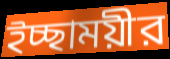
ইচ্ছাময়ীর